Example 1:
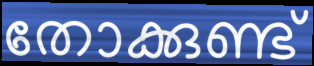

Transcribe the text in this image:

തോക്കുണ്ട്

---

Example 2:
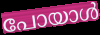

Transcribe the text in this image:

പോയാൾ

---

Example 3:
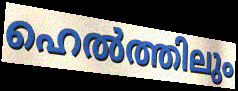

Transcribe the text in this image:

ഹെൽത്തിലും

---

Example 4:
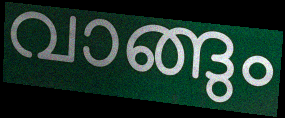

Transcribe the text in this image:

വാങ്ങും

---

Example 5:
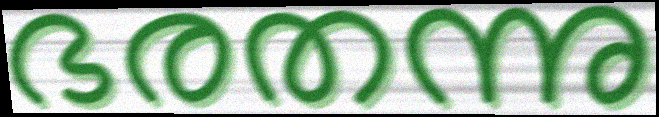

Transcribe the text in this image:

ഭരതന്നു